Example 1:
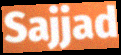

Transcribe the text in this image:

Sajjad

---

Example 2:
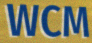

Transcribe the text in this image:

WCM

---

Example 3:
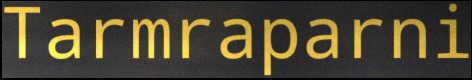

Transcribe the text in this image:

Tarmraparni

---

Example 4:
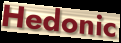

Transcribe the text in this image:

Hedonic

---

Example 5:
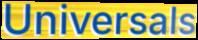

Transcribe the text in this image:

Universals